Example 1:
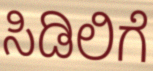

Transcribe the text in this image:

ಸಿಡಿಲಿಗೆ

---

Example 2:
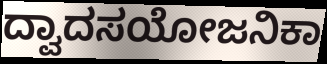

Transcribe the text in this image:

ದ್ವಾದಸಯೋಜನಿಕಾ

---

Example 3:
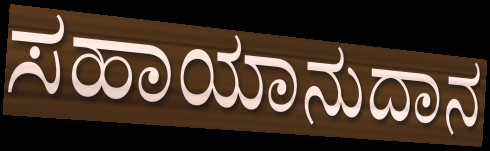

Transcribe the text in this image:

ಸಹಾಯಾನುದಾನ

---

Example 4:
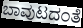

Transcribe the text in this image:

ಬಾವುಟದಂತೆ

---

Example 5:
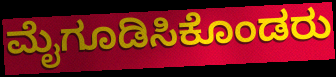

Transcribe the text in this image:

ಮೈಗೂಡಿಸಿಕೊಂಡರು